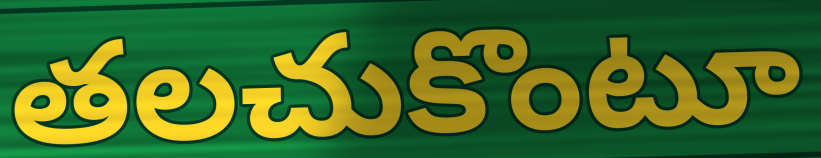
తలచుకొంటూ